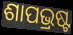
ଶାପଭ୍ରଷ୍ଟ